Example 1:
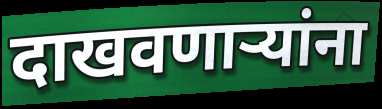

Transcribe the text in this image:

दाखवणाऱ्यांना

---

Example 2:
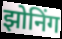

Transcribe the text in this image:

झोनिंग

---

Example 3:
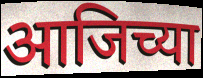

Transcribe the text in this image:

आजिच्या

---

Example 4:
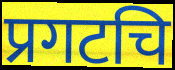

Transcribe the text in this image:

प्रगटचि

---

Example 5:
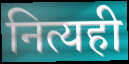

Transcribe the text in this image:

नित्यही